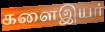
களைஇயர்